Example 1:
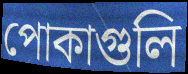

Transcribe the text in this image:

পোকাগুলি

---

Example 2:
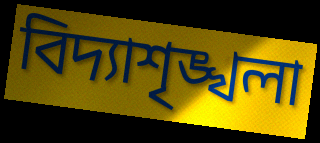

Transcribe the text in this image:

বিদ্যাশৃঙ্খলা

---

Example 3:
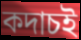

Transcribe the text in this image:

কদাচই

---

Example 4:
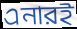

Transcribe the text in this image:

এনারই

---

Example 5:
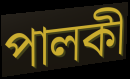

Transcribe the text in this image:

পালকী